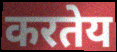
करतेय